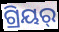
ଗ୍ରିୟର୍